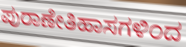
ಪುರಾಣೇತಿಹಾಸಗಳಿಂದ